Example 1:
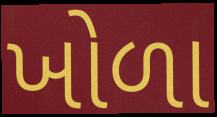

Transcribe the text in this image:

ખોળા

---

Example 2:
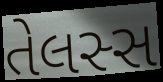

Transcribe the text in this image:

તેલસ્સ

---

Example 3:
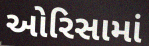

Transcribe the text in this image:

ઓરિસામાં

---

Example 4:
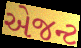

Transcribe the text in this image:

એજન્ટ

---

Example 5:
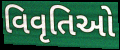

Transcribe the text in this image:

વિવૃતિઓ